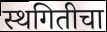
स्थगितीचा